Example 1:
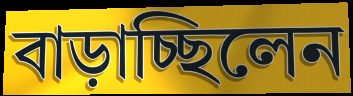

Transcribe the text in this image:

বাড়াচ্ছিলেন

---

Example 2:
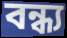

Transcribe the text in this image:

বন্ধ্য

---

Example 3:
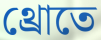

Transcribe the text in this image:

থ্রোতে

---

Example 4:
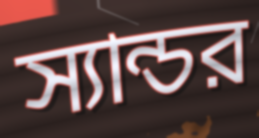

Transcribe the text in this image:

স্যান্ডর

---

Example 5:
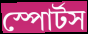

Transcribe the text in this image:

স্পোর্টস